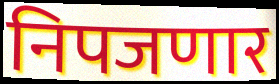
निपजणार